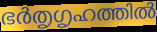
ഭർതൃഗൃഹത്തിൽ